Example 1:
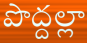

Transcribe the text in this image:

పొద్దల్లా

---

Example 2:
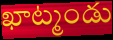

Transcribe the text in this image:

ఖాట్మండు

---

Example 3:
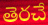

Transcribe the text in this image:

తెరచే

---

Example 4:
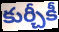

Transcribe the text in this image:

కుర్చీకీ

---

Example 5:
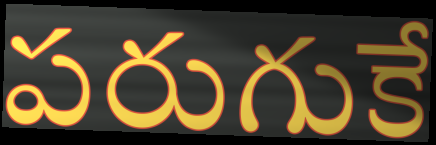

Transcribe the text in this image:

పరుగుకే